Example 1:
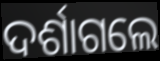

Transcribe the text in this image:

ଦର୍ଶାଗଲେ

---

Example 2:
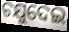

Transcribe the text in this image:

ଚକ୍ଷୁଦେଇ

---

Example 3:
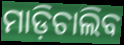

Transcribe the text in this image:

ମାଡ଼ିଚାଲିବ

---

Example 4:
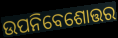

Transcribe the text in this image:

ଉପନିବେଶୋତ୍ତର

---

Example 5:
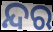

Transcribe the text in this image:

ନ୍ଦର